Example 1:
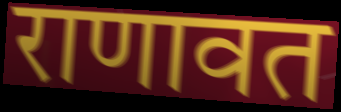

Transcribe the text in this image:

राणावत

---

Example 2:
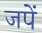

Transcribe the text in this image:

जपें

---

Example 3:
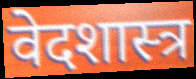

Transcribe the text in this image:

वेदशास्त्र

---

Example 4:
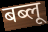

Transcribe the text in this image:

बब्लू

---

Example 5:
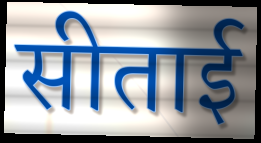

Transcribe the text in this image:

सीताई